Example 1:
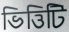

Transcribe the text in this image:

ভিত্তিটি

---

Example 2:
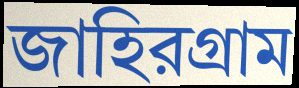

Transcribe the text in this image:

জাহিরগ্রাম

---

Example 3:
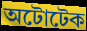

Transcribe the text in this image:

অটোটেক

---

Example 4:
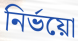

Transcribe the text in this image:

নির্ভয়ো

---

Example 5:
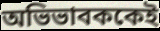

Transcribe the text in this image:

অভিভাবককেই